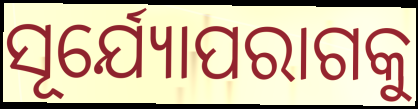
ସୂର୍ଯ୍ୟୋପରାଗକୁ